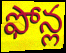
ఫోన్ల